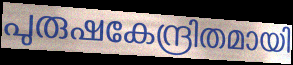
പുരുഷകേന്ദ്രിതമായി